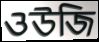
ওউজি